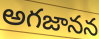
అగజానన